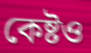
কেষ্টও